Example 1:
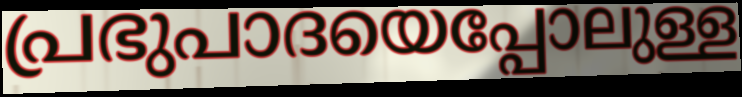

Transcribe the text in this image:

പ്രഭുപാദയെപ്പോലുള്ള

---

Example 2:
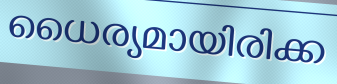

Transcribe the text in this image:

ധൈര്യമായിരിക്ക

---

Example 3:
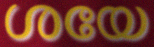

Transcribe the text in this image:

ശയേ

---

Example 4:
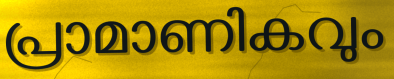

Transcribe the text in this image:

പ്രാമാണികവും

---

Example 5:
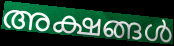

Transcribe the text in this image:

അക്ഷങ്ങൾ